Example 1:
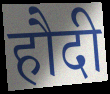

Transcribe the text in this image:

हौदी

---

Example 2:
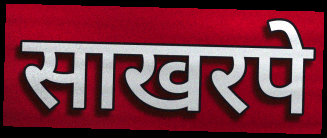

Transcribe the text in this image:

साखरपे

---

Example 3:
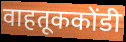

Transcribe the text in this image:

वाहतूककोंडी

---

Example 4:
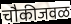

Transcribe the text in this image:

चौकीजवळ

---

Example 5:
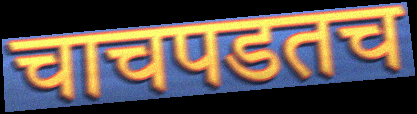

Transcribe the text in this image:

चाचपडतच